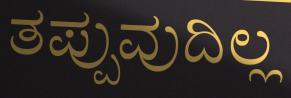
ತಪ್ಪುವುದಿಲ್ಲ